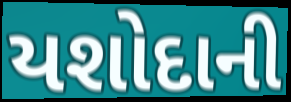
યશોદાની